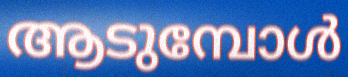
ആടുമ്പോൾ